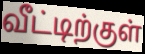
வீட்டிற்குள்